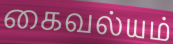
கைவல்யம்